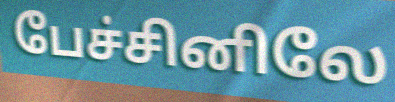
பேச்சினிலே